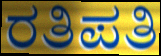
ರತಿಪತಿ